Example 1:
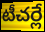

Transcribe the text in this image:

టీచర్లే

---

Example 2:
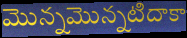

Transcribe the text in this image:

మొన్నమొన్నటిదాకా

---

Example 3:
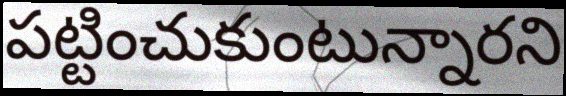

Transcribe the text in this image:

పట్టించుకుంటున్నారని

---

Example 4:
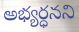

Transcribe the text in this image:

అభ్యర్ధనని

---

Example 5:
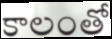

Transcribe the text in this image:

కాలంతో